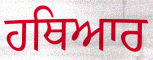
ਹਥਿਆਰ